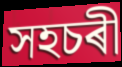
সহচৰী